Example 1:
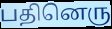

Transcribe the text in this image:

பதினெரு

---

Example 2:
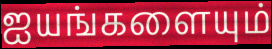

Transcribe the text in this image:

ஐயங்களையும்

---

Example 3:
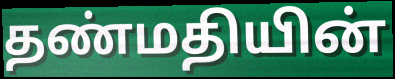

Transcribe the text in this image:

தண்மதியின்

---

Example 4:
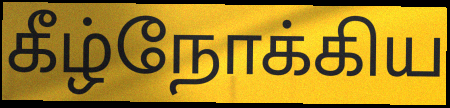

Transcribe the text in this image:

கீழ்நோக்கிய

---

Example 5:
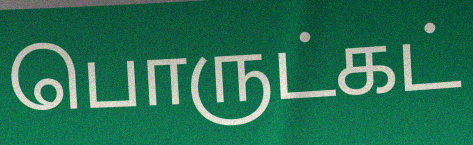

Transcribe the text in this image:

பொருட்கட்